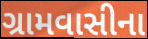
ગ્રામવાસીના